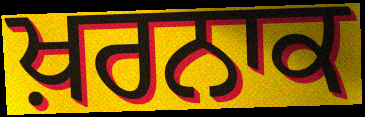
ਖ਼ਰਨਾਕ